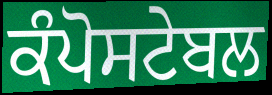
ਕੰਪੋਸਟੇਬਲ